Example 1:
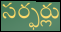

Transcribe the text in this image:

సర్ఫర్లు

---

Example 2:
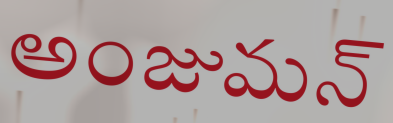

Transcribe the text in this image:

అంజుమన్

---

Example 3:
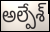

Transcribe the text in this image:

అల్పేశ్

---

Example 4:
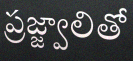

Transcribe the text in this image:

ప్రజ్జ్వాలితో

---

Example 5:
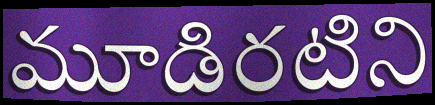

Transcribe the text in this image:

మూడిరటిని